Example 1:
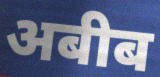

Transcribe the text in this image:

अबीब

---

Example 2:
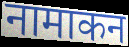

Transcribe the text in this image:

नामाकन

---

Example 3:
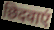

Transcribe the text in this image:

छिदवाएं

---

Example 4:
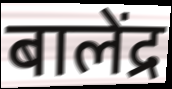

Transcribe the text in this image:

बालेंद्र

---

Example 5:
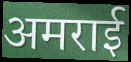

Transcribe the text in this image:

अमराई